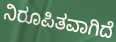
ನಿರೂಪಿತವಾಗಿದೆ